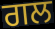
ਗਲ